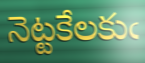
నెట్టకేలకుఁ